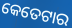
କେତେଟାର